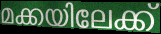
മക്കയിലേക്ക്